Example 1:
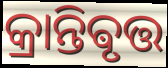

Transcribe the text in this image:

କ୍ରାନ୍ତିଵୃତ୍ତ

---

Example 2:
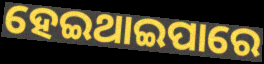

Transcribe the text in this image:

ହେଇଥାଇପାରେ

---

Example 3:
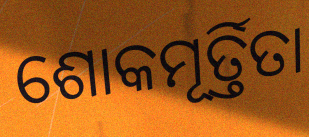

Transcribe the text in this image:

ଶୋକମୂର୍ତ୍ତିତା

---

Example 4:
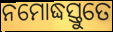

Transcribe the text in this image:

ନମୋଦ୍ଧସ୍ତୁତେ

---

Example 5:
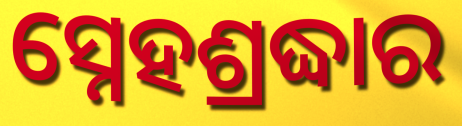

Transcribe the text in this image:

ସ୍ନେହଶ୍ରଦ୍ଧାର